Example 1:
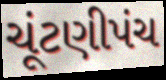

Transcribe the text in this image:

ચૂંટણીપંચ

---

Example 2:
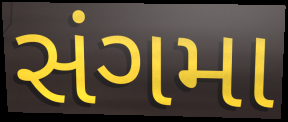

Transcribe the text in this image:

સંગમા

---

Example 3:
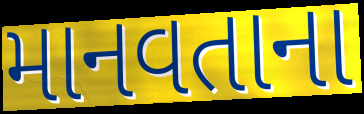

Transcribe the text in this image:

માનવતાના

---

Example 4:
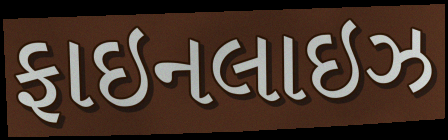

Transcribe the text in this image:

ફાઇનલાઇઝ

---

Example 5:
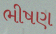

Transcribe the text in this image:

ભીષણ